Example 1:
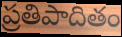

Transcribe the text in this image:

ప్రతిపాదితం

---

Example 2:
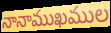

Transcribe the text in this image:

నానాముఖముల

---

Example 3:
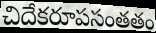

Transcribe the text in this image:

చిదేకరూపసంతతం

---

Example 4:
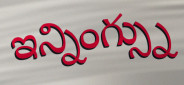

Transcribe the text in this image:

ఇన్నింగ్స్ను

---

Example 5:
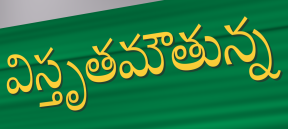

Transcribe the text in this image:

విస్తృతమౌతున్న